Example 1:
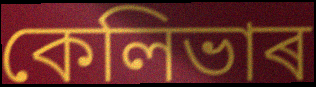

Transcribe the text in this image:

কেলিভাৰ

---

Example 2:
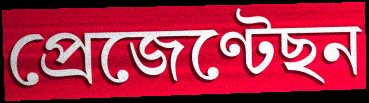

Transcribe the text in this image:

প্ৰেজেণ্টেছন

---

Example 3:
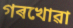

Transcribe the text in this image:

গৰখোৱা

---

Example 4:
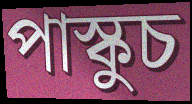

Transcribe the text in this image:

পাস্কুচ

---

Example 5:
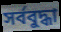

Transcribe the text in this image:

সৰ্ববুদ্ধা